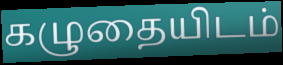
கழுதையிடம்